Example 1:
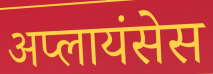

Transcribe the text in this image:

अप्लायंसेस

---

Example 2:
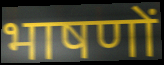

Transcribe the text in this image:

भाषणों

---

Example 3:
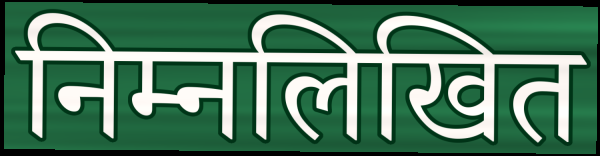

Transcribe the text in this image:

निम्नलिखित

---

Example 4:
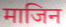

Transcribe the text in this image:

माजिन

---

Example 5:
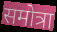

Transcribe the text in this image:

समोत्रा